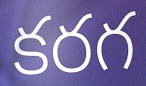
కరగ